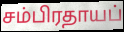
சம்பிரதாயப்